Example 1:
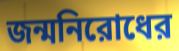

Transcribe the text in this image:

জন্মনিরোধের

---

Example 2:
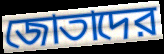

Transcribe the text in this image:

জোতাদের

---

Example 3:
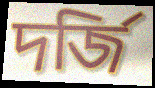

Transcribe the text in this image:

দর্জি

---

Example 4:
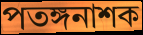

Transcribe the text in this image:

পতঙ্গনাশক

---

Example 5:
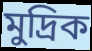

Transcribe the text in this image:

মুদ্রিক